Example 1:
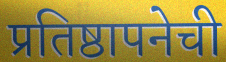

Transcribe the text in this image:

प्रतिष्ठापनेची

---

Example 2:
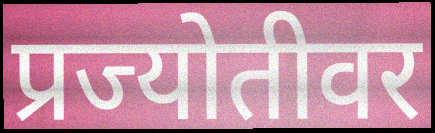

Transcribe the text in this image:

प्रज्योतीवर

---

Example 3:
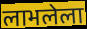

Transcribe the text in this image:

लाभलेला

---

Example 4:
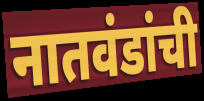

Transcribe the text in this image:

नातवंडांची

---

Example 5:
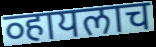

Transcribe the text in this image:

व्हायलाच